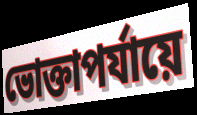
ভোক্তাপর্যায়ে